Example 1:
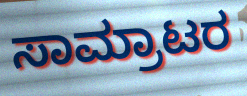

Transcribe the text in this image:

ಸಾಮ್ರಾಟರ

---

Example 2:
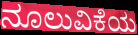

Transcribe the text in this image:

ನೂಲುವಿಕೆಯ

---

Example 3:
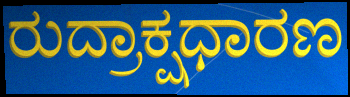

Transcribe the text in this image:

ರುದ್ರಾಕ್ಷಧಾರಣ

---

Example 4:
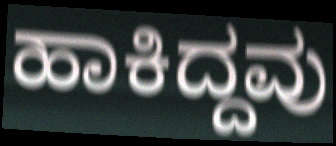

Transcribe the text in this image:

ಹಾಕಿದ್ದವು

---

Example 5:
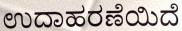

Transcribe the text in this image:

ಉದಾಹರಣೆಯಿದೆ